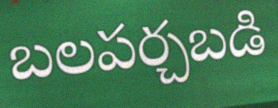
బలపర్చబడి